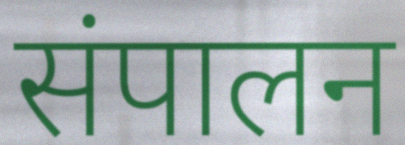
संपालन